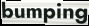
bumping